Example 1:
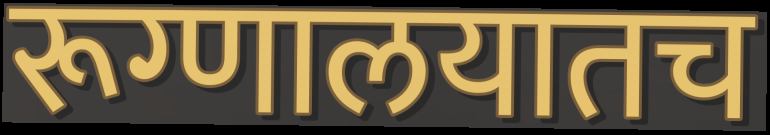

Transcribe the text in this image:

रूग्णालयातच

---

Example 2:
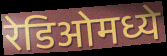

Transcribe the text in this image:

रेडिओमध्ये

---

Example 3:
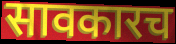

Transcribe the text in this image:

सावकारच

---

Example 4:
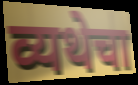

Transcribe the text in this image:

व्यथेचा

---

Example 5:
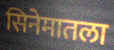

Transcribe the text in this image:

सिनेमातला